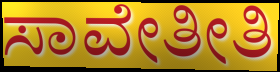
ಸಾವೇತೀತಿ